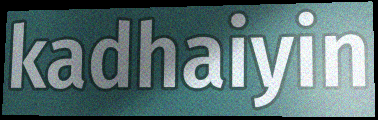
kadhaiyin